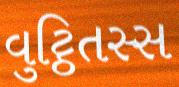
વુટ્ઠિતસ્સ